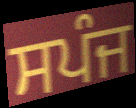
ਸਪੰਜ